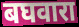
बघवारा